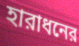
হারাধনের